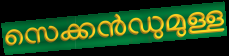
സെക്കൻഡുമുള്ള